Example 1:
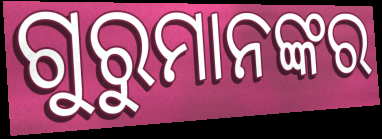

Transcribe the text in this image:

ଗୁରୁମାନଙ୍କର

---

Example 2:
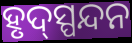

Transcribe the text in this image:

ହୃଦ୍‍ସ୍ପନ୍ଦନ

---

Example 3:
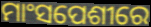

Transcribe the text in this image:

ମାଂସପେଶୀରେ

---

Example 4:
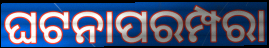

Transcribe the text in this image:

ଘଟନାପରମ୍ପରା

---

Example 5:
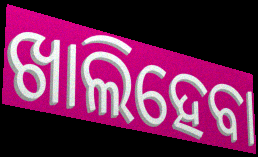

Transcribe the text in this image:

ଖାଲିହେବା